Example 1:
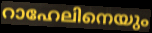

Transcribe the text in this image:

റാഹേലിനെയും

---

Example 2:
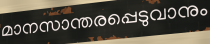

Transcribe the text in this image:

മാനസാന്തരപ്പെടുവാനും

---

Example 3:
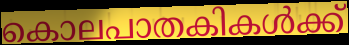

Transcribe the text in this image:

കൊലപാതകികൾക്ക്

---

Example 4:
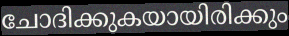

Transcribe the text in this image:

ചോദിക്കുകയായിരിക്കും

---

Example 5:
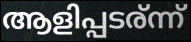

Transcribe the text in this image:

ആളിപ്പടര്ന്ന്